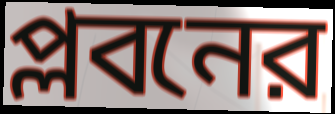
প্লবনের